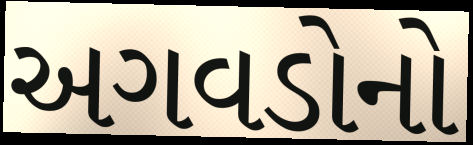
અગવડોનો